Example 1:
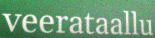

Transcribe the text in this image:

veerataallu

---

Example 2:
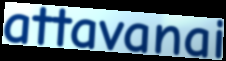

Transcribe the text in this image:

attavanai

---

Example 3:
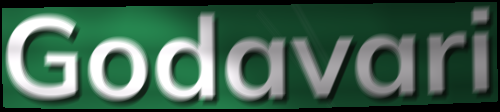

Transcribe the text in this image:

Godavari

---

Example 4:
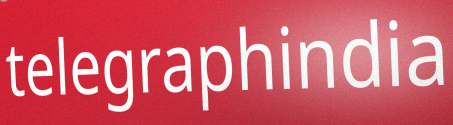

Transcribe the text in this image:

telegraphindia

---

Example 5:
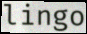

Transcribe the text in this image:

lingo